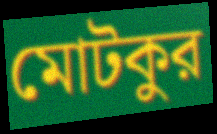
মোটকুর